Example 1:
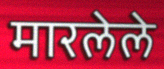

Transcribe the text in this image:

मारलेले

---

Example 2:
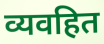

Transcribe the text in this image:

व्यवहित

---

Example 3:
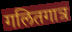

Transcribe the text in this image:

गलितगात्र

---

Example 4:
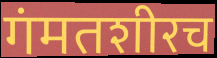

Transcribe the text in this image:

गंमतशीरच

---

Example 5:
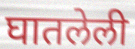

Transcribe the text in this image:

घातलेली